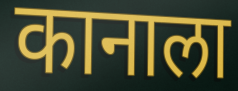
कानाला